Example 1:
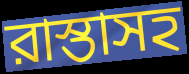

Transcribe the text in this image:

রাস্তাসহ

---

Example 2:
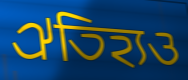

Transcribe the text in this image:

ঐতিহ্যও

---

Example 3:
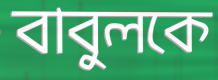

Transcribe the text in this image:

বাবুলকে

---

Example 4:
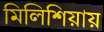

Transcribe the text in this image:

মিলিশিয়ায়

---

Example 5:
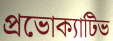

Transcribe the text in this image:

প্রভোক্যাটিভ